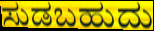
ಸುಡಬಹುದು